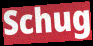
Schug